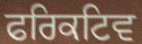
ਫਰਿਕਟਿਵ